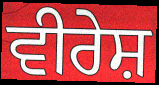
ਵੀਰੇਸ਼